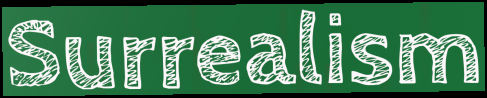
Surrealism